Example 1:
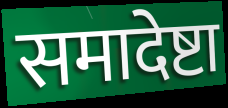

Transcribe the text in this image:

समादेष्टा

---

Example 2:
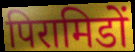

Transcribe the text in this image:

पिरामिडों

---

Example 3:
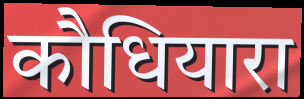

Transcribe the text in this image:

कौधियारा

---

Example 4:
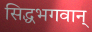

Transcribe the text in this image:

सिद्धभगवान्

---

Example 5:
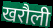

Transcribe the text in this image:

खरौली